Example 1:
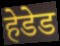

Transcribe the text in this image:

हेडेड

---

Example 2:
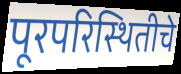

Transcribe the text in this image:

पूरपरिस्थितीचे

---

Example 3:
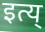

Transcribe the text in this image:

इत्य्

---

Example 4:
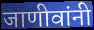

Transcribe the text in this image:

जाणीवांनी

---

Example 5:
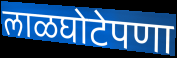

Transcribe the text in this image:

लाळघोटेपणा